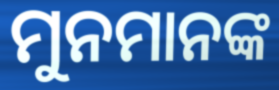
ମୁନମାନଙ୍କ